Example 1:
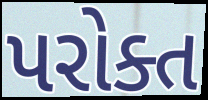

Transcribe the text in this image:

પરોક્ત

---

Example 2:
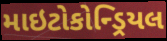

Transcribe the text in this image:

માઇટોકોન્ડ્રિયલ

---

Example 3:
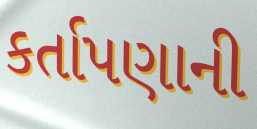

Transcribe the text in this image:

કર્તાપણાની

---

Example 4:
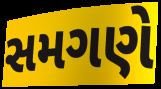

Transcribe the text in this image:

સમગણે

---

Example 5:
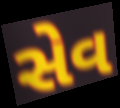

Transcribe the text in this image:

સેવ